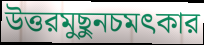
উত্তরমুছুনচমৎকার